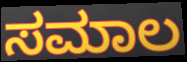
ಸಮಾಲ